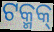
ଟକ୍ମକ୍